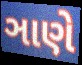
ઞાણે